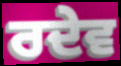
ਰਦੇਵ